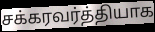
சக்கரவர்த்தியாக